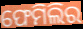
ଫେମିଲିର